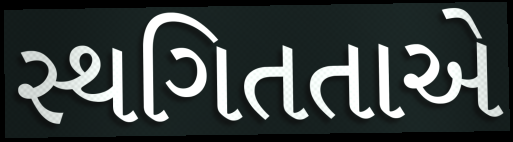
સ્થગિતતાએ